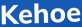
Kehoe